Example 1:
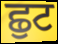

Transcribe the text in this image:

ਛੁਟ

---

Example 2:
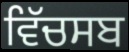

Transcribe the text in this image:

ਵਿੱਚਸਬ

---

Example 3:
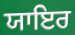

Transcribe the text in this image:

ਯਾਇਰ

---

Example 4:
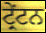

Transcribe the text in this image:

ਟ੍ਰੇਂਟਨ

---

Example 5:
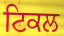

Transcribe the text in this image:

ਟਿਕਲ